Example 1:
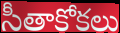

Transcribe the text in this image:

సీతాకోకలు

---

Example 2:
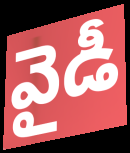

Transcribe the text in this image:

వైడీ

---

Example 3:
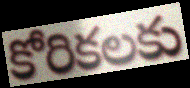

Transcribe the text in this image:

కోరికలకు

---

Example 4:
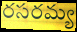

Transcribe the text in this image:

రసరమ్య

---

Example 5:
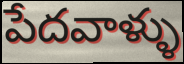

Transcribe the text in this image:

పేదవాళ్ళు